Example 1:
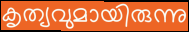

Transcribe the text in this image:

കൃത്യവുമായിരുന്നു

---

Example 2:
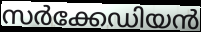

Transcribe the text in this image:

സർക്കേഡിയൻ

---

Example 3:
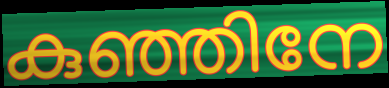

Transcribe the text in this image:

കുഞ്ഞിനേ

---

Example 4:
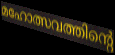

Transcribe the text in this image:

മഹോത്സവത്തിന്റെ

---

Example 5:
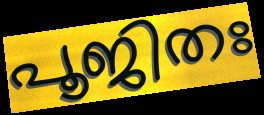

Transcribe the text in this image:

പൂജിതഃ